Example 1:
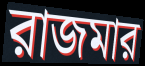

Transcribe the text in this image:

রাজমার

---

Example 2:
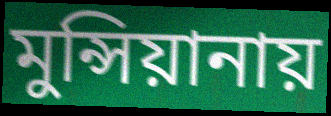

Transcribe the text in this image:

মুন্সিয়ানায়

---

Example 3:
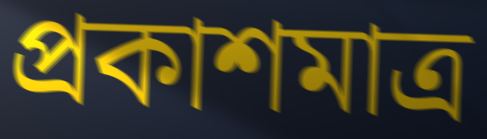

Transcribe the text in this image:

প্রকাশমাত্র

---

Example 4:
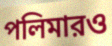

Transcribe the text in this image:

পলিমারও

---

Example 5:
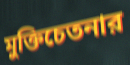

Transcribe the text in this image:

মুক্তিচেতনার